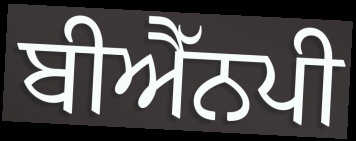
ਬੀਐੱਨਪੀ